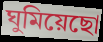
ঘুমিয়েছো